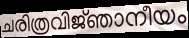
ചരിത്രവിജ്‌ഞാനീയം